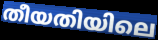
തീയതിയിലെ